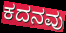
ಕದನವು